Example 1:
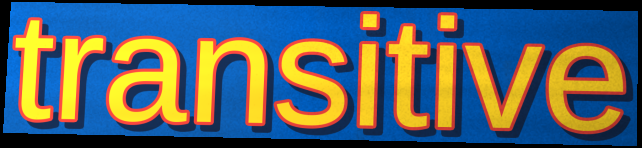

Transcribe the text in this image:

transitive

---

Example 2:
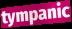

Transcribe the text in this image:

tympanic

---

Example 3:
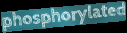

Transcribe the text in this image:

phosphorylated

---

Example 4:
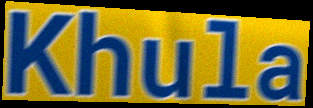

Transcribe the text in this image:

Khula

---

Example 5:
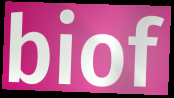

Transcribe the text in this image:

biof